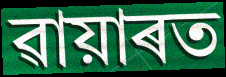
ৱায়াৰত